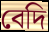
বেদি